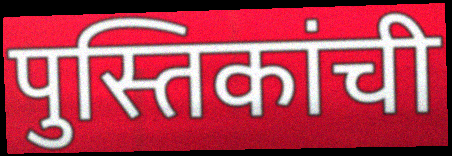
पुस्तिकांची